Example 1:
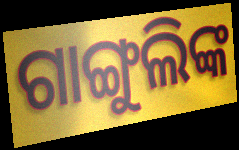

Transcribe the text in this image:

ଗାଙ୍ଗୁଲିଙ୍କ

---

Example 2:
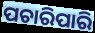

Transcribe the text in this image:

ପଚାରିପାରି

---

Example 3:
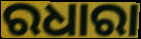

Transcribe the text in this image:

ରଧାରା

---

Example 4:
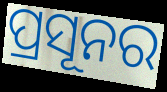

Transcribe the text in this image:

ପ୍ରସୂନର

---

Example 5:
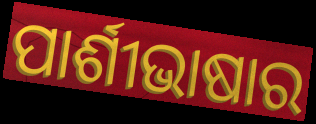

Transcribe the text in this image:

ପାର୍ଶୀଭାଷାର